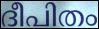
ദീപിതം